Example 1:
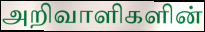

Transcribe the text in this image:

அறிவாளிகளின்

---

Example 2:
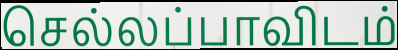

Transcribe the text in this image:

செல்லப்பாவிடம்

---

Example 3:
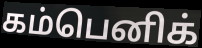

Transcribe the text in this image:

கம்பெனிக்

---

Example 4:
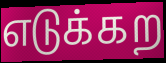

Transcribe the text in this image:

எடுக்கற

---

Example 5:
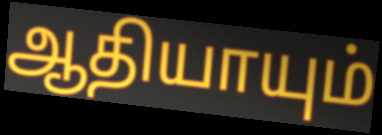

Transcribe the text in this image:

ஆதியாயும்